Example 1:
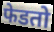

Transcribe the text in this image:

फेडतो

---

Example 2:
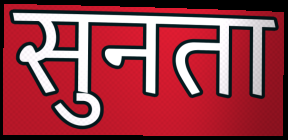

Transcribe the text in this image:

सुनता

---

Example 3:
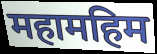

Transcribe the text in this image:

महामहिम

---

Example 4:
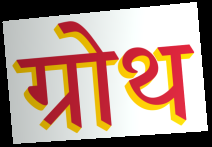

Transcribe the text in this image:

ग्रोथ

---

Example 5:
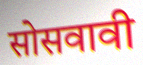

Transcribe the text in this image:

सोसवावी